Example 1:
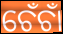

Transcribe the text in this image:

ଚେଁଚାଁ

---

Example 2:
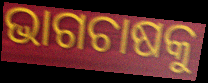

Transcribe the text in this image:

ଭାଗଚାଷକୁ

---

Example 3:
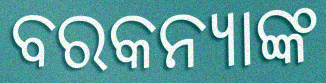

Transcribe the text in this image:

ବରକନ୍ୟାଙ୍କ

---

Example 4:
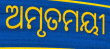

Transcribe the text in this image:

ଅମୃତମୟୀ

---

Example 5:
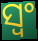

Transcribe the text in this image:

ସ୍ୱଂ